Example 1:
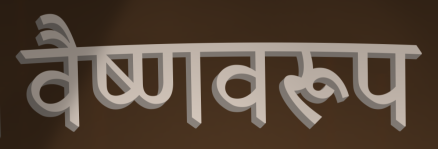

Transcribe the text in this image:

वैष्णवरूप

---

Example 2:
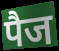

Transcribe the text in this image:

पैज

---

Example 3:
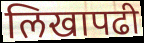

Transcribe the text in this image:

लिखापढी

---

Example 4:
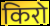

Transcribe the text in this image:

किरो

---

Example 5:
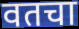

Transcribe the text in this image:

वतचा